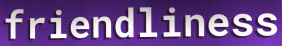
friendliness